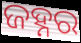
ଜହ୍ନର